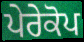
ਪੇਰੇਕੋਪ